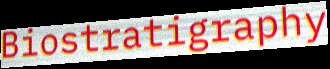
Biostratigraphy